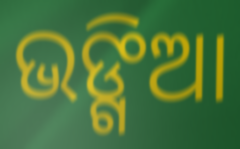
ଭଙ୍ଗିଆ